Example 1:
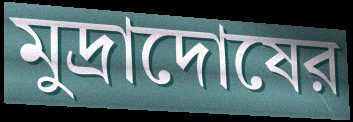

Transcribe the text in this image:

মুদ্রাদোষের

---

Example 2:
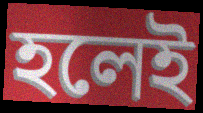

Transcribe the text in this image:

হলেই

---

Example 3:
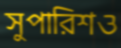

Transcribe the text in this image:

সুপারিশও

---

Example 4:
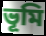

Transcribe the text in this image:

ভূমি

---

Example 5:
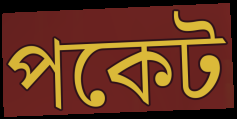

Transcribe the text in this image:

পকেট